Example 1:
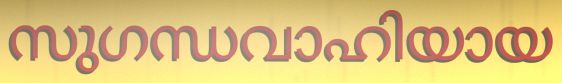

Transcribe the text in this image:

സുഗന്ധവാഹിയായ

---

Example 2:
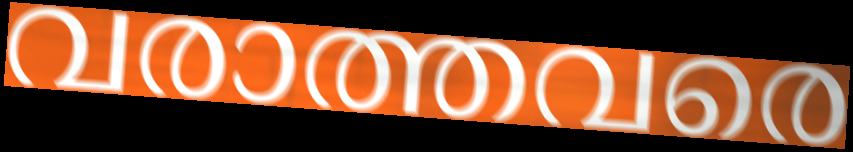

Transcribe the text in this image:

വരാത്തവരെ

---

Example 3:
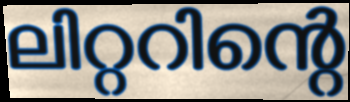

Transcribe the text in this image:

ലിറ്ററിന്റെ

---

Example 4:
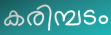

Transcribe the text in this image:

കരിമ്പടം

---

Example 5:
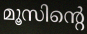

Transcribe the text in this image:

മൂസിന്റെ